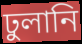
ঢুলানি